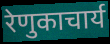
रेणुकाचार्य